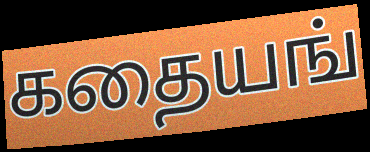
கதையங்